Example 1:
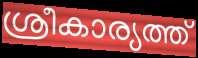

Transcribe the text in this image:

ശ്രീകാര്യത്ത്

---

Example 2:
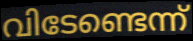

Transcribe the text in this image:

വിടേണ്ടെന്ന്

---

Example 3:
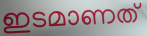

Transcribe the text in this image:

ഇടമാണത്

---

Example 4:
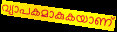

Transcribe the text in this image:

വ്യാപകമാകുകയാണ്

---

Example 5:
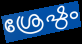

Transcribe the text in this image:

ശ്രേഷ്ഠം